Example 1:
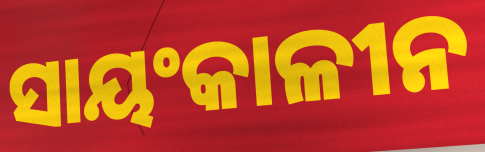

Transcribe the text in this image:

ସାୟଂକାଳୀନ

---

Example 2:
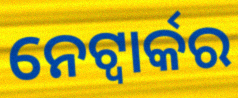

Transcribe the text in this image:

ନେଟ୍ୱାର୍କର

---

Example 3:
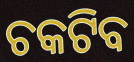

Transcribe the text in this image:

ଚକଟିବ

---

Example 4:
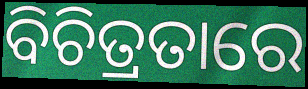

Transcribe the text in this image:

ବିଚିତ୍ରତାରେ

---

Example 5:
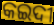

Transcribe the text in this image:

କଇଦୀ